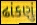
ઢાંકણું